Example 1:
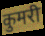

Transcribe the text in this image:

कुमरी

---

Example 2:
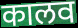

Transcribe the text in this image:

कालव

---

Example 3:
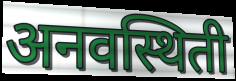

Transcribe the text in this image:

अनवस्थिती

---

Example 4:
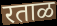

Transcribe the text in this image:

रताळ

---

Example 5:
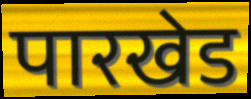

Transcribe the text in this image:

पारखेड